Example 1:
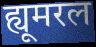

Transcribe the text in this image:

ह्यूमरल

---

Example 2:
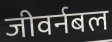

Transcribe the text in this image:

जीवर्नबल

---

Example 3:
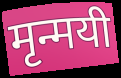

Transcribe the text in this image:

मृन्मयी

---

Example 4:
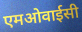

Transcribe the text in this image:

एमओवाईसी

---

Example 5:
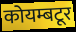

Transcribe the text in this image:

कोयम्‍बटूर